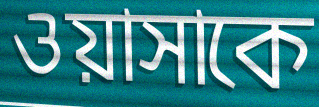
ওয়াসাকে